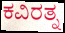
ಕವಿರತ್ನ